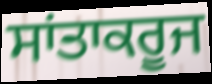
ਸਾਂਤਾਕਰੂਜ